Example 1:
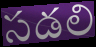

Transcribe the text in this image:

సడలి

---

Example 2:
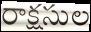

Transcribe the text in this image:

రాక్షసుల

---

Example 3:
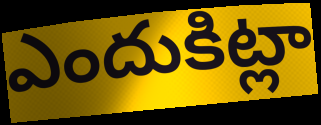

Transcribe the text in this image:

ఎందుకిట్లా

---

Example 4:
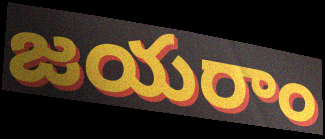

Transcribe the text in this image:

జయరాం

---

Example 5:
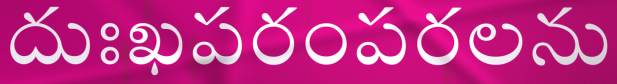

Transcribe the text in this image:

దుఃఖపరంపరలను